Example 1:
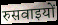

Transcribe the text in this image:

रुसवाइयों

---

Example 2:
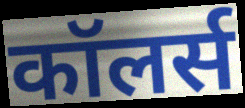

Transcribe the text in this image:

कॉलर्स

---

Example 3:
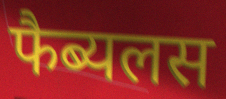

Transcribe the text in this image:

फैब्यलस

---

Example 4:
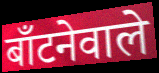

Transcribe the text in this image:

बाँटनेवाले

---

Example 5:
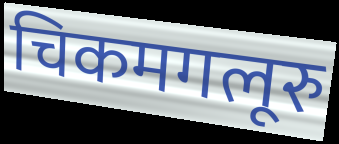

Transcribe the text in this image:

चिकमगलूरु